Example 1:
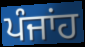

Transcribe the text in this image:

ਪੰਜਾਂਹ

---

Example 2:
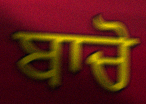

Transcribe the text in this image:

ਬਾਚੋ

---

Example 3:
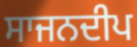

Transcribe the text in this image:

ਸਾਜਨਦੀਪ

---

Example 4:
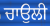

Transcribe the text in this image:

ਚਾਉਲੀ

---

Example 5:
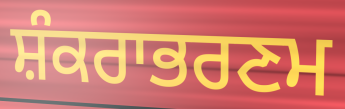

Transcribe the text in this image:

ਸ਼ੰਕਰਾਭਰਣਮ